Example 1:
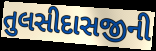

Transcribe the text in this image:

તુલસીદાસજીની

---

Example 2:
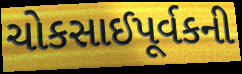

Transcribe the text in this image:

ચોકસાઈપૂર્વકની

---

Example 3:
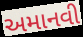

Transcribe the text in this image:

અમાનવી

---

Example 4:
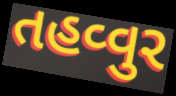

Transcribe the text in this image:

તહવ્વુર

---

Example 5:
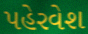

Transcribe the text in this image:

પહેરવેશ